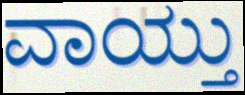
ವಾಯ್ತು